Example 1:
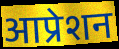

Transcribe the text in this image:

आप्रेशन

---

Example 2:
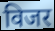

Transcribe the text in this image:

विजर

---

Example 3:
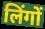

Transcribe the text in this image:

लिंगों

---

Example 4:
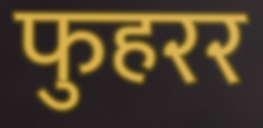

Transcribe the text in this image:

फुहरर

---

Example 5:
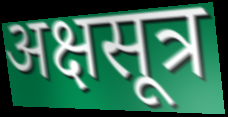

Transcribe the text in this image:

अक्षसूत्र